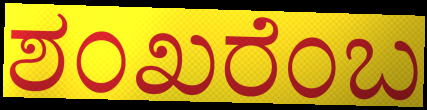
ಶಂಖರೆಂಬ